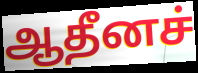
ஆதீனச்